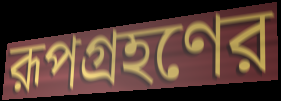
রূপগ্রহণের